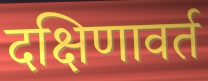
दक्षिणावर्त